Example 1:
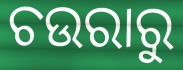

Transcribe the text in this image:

ଚଉରାରୁ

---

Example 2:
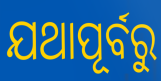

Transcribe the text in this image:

ଯଥାପୂର୍ବରୁ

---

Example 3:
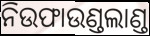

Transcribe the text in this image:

ନିଉଫାଉଣ୍ଡଲାଣ୍ଡ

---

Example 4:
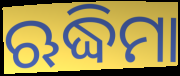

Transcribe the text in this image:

ଋଦ୍ଧିମା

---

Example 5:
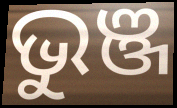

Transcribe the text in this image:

ଭୁଞ୍ଜ